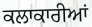
ਕਲਾਕਾਰੀਆਂ